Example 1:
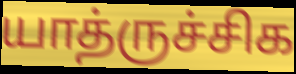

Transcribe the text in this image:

யாத்ருச்சிக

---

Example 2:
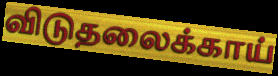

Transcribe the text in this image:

விடுதலைக்காய்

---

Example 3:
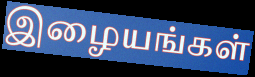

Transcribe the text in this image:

இழையங்கள்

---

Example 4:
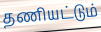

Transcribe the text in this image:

தணியட்டும்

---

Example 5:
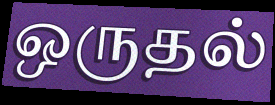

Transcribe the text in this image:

ஒருதல்